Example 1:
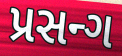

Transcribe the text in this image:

પ્રસન્ગ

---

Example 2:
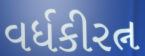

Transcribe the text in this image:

વર્ધકીરત્ન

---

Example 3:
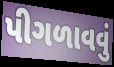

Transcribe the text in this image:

પીગળાવવું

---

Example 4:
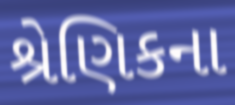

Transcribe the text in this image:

શ્રેણિકના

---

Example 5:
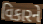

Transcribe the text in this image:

વિકારને